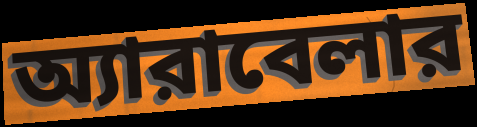
অ্যারাবেলার